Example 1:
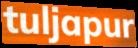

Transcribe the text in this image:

tuljapur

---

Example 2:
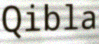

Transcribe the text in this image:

Qibla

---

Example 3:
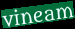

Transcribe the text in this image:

vineam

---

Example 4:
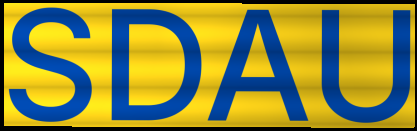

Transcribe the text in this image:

SDAU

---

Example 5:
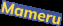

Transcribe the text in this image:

Mameru